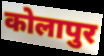
कोलापुर